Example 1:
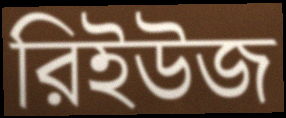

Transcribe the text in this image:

রিইউজ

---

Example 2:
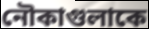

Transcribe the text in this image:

নৌকাগুলাকে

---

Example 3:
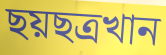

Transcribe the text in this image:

ছয়ছত্রখান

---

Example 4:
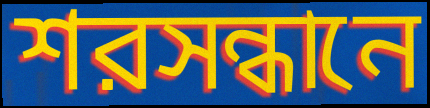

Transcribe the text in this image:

শরসন্ধানে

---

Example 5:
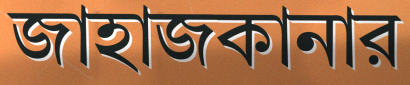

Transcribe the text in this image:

জাহাজকানার